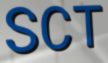
SCT